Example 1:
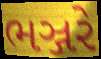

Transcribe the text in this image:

ભઞ્જરે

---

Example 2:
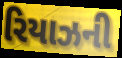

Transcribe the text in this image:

રિયાઝની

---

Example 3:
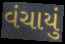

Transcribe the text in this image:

વંચાયું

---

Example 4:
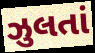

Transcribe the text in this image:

ઝુલતાં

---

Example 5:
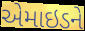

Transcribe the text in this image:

એમાઇડને